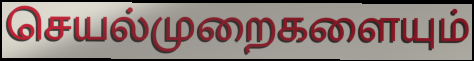
செயல்முறைகளையும்